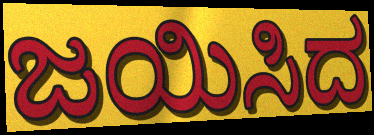
ಜಯಿಸಿದ